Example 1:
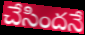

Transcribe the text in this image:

చేసిందనే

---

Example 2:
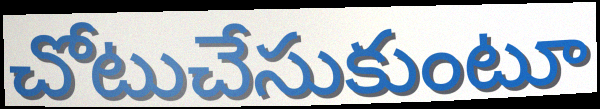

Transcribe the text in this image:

చోటుచేసుకుంటూ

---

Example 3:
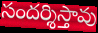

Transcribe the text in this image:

సందర్శిస్తావు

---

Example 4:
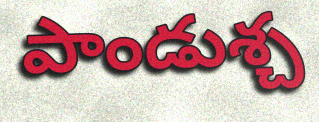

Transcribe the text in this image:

పాండుశ్చ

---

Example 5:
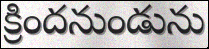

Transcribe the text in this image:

క్రిందనుండును